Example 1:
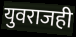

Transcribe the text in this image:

युवराजही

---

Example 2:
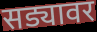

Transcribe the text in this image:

सड्यावर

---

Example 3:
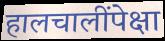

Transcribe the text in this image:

हालचालींपेक्षा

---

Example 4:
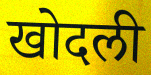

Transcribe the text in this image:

खोदली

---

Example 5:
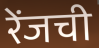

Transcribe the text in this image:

रेंजची